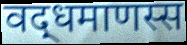
वद्धमाणस्स